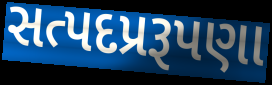
સત્પદપ્રરૂપણા